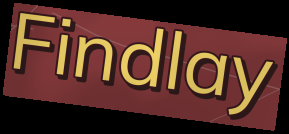
Findlay